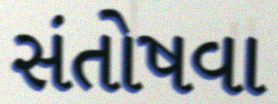
સંતોષવા